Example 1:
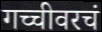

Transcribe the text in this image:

गच्चीवरचं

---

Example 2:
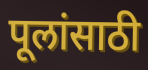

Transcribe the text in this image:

पूलांसाठी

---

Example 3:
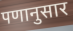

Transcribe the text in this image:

पणानुसार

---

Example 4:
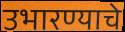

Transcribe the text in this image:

उभारण्याचे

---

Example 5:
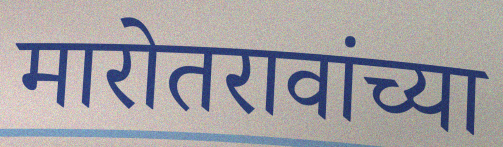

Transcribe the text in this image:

मारोतरावांच्या